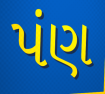
પંણ